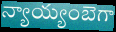
న్యాయ్యంబెగా